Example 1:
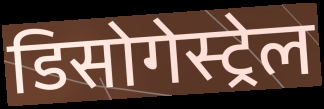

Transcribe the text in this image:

डिसोगेस्ट्रेल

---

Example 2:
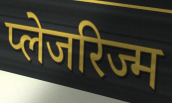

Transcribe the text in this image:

प्लेजरिज्म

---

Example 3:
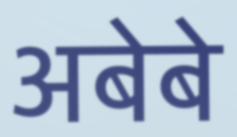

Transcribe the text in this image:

अबेबे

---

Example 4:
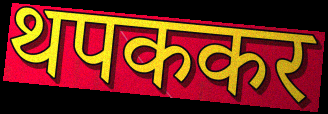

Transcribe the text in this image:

थपककर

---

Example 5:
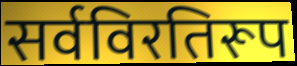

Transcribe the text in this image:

सर्वविरतिरूप